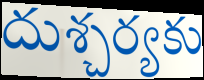
దుశ్చర్యకు